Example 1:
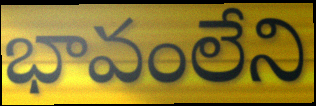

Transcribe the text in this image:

భావంలేని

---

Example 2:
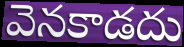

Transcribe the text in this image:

వెనకాడదు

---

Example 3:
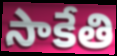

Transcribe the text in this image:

సాకేతి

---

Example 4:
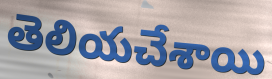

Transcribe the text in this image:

తెలియచేశాయి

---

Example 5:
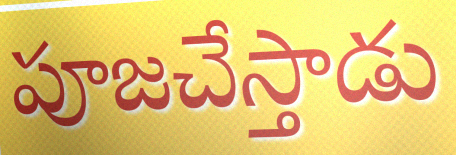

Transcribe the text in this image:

పూజచేస్తాడు